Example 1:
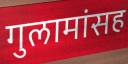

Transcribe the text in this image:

गुलामांसह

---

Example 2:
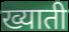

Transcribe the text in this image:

ख्याती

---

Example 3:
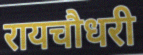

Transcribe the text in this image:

रायचौधरी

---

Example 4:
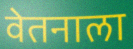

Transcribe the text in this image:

वेतनाला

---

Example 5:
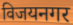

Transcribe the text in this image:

विजयनगर